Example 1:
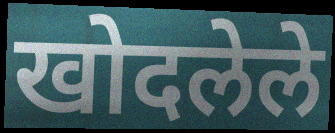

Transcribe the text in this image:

खोदलेले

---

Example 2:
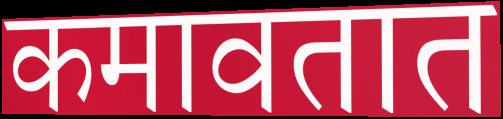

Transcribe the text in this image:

कमावतात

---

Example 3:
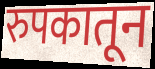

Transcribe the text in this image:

रुपकातून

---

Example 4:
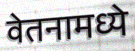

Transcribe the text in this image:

वेतनामध्ये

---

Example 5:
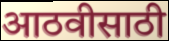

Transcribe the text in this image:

आठवीसाठी